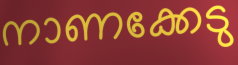
നാണക്കേടു